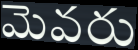
మెవరు